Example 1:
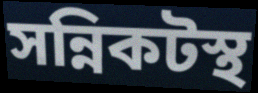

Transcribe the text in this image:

সন্নিকটস্থ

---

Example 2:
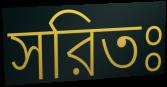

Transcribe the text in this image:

সরিতঃ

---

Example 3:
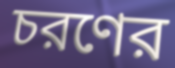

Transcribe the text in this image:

চরণের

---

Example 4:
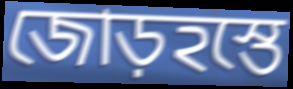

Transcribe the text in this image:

জোড়হস্তে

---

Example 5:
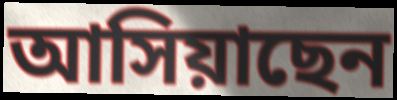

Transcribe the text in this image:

আসিয়াছেন